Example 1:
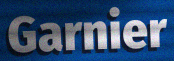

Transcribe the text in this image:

Garnier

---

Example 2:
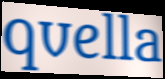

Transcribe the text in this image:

quella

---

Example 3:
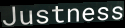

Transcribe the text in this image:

Justness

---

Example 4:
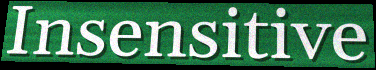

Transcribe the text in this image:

Insensitive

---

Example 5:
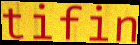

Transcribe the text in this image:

tifin